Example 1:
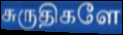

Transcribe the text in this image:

சுருதிகளே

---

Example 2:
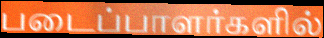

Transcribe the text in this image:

படைப்பாளர்களில்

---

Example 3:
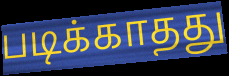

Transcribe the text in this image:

படிக்காதது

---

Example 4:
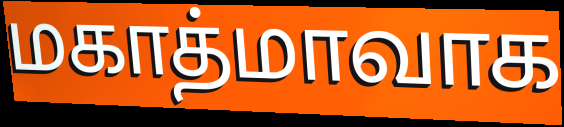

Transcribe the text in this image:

மகாத்மாவாக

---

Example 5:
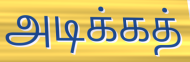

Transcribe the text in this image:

அடிக்கத்